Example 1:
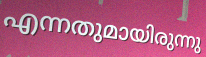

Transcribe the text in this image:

എന്നതുമായിരുന്നു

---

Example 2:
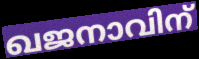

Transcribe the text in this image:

ഖജനാവിന്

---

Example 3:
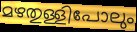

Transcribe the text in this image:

മഴതുള്ളിപോലും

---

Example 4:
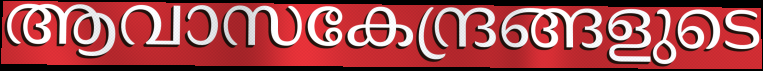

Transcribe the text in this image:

ആവാസകേന്ദ്രങ്ങളുടെ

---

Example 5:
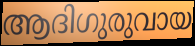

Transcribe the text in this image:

ആദിഗുരുവായ